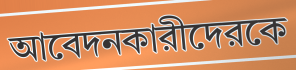
আবেদনকারীদেরকে